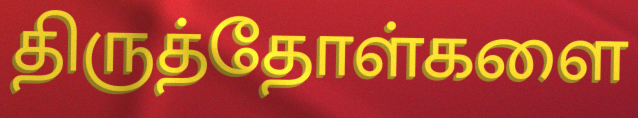
திருத்தோள்களை